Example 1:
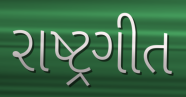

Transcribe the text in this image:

રાષ્ટ્રગીત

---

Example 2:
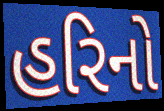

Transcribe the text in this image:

હરિનો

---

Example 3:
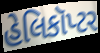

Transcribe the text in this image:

હેલિકૉપ્ટર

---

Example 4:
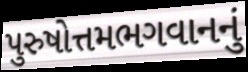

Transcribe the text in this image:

પુરુષોત્તમભગવાનનું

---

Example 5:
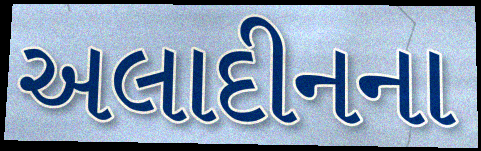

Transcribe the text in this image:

અલાદીનના